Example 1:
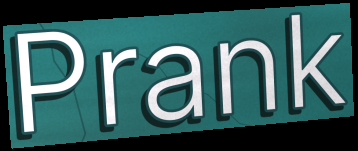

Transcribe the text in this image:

Prank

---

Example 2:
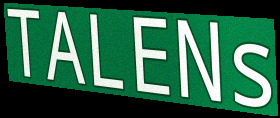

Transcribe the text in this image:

TALENs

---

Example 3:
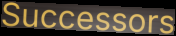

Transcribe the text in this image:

Successors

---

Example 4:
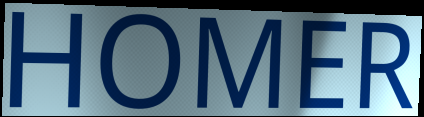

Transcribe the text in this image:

HOMER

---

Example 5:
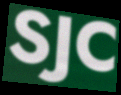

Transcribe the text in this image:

SJC